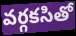
వర్గకసితో